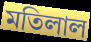
মতিলাল